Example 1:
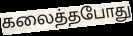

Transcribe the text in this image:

கலைத்தபோது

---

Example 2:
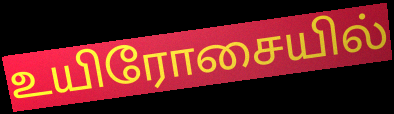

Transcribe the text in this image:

உயிரோசையில்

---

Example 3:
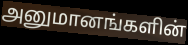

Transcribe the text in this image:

அனுமானங்களின்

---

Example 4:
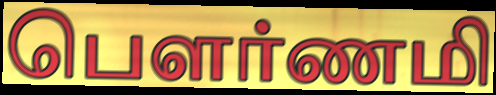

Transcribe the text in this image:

பௌர்ணமி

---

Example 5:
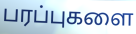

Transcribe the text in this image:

பரப்புகளை